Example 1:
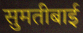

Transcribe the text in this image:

सुमतीबाई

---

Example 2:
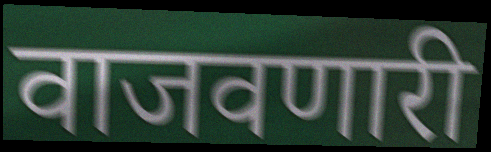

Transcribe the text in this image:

वाजवणारी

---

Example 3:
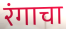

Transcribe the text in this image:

रंगाचा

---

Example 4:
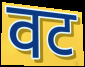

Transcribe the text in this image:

वट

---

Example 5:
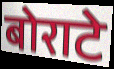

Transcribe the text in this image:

बोराटे